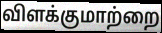
விளக்குமாற்றை